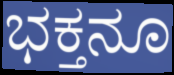
ಭಕ್ತನೂ